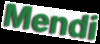
Mendi